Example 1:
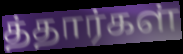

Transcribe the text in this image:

த்தார்கள்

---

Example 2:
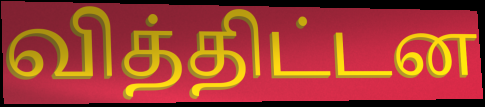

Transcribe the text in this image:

வித்திட்டன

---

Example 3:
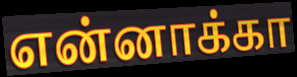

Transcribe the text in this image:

என்னாக்கா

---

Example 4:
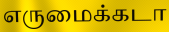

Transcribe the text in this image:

எருமைக்கடா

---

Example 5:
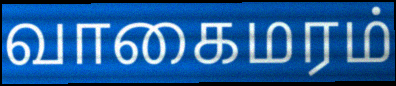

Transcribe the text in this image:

வாகைமரம்